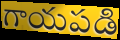
గాయపడి